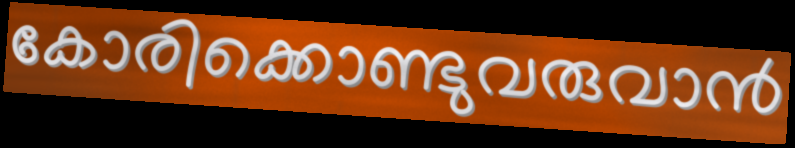
കോരിക്കൊണ്ടുവരുവാൻ